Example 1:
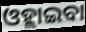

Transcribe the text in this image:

ଓହ୍ଲାଇବା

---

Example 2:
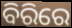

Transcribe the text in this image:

ବିରିରେ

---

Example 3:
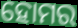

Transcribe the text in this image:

ହୋମର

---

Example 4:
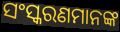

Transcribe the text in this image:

ସଂସ୍କରଣମାନଙ୍କ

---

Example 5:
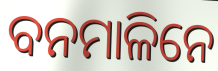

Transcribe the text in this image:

ବନମାଳିନେ